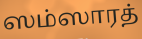
ஸம்ஸாரத்